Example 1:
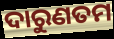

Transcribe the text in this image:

ଦାରୁଣତମ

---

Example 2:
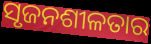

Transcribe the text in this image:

ସୃଜନଶୀଳତାର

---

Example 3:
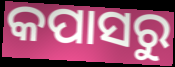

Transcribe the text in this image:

କପାସରୁ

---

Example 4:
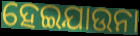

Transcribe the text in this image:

ହେଇଯାଉନା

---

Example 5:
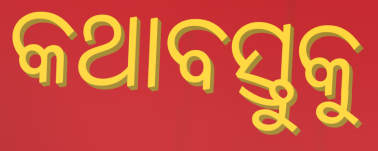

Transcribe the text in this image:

କଥାବସ୍ତୁକୁ